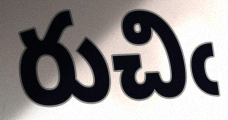
రుచిఁ